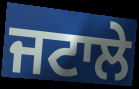
ਜਟਾਲੇ